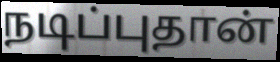
நடிப்புதான்